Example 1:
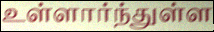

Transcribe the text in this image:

உள்ளார்ந்துள்ள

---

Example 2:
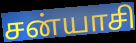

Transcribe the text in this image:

சன்யாசி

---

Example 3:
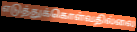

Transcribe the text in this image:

எடுத்துக்கொள்வதில்லை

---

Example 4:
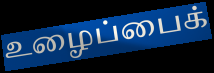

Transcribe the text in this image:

உழைப்பைக்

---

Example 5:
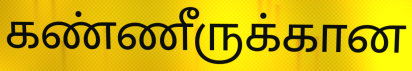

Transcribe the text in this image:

கண்ணீருக்கான